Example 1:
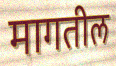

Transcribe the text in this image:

मागतील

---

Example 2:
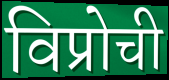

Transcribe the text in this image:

विप्रोची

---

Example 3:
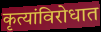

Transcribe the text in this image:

कृत्यांविरोधात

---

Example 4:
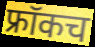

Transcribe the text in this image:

फ्रॉकच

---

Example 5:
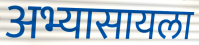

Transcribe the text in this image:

अभ्यासायला